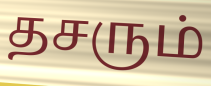
தசரும்